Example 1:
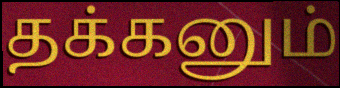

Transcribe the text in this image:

தக்கனும்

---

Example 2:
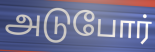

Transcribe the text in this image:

அடுபோர்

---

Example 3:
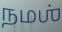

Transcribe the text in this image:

நமஶ்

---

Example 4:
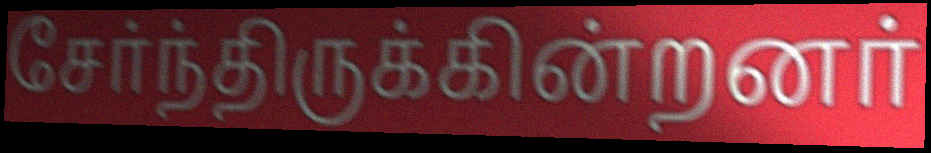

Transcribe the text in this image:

சேர்ந்திருக்கின்றனர்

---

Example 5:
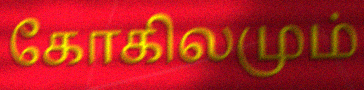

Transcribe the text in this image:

கோகிலமும்